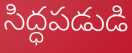
సిద్ధపడుడి